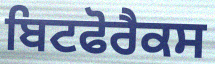
ਬਿਟਫੋਰੈਕਸ